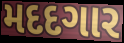
મદદગાર